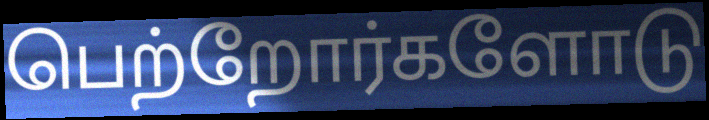
பெற்றோர்களோடு